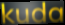
kuda